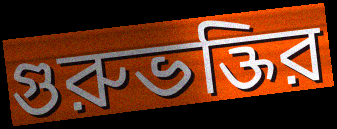
গুরুভক্তির